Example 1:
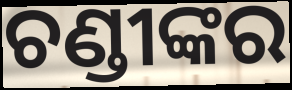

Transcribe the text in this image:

ଚଣ୍ଡୀଙ୍କର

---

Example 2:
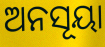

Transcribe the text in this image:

ଅନସୂୟା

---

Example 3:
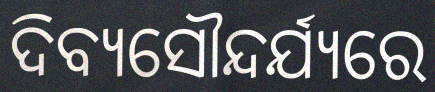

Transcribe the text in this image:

ଦିବ୍ୟସୌନ୍ଦର୍ଯ୍ୟରେ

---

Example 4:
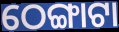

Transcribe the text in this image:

ଠେଙ୍ଗାଟା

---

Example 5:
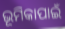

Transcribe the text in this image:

ଭୂମିକାପାଇଁ